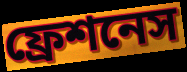
ফ্রেশনেস